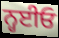
ਨ੍ਹਈਓ